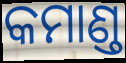
କମାଣ୍ଡ